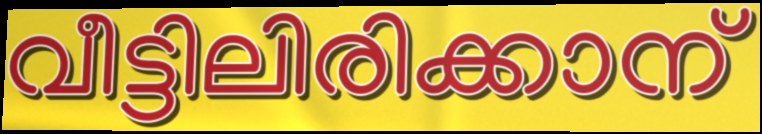
വീട്ടിലിരിക്കാന്